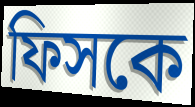
ফিসকে